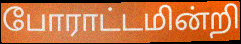
போராட்டமின்றி